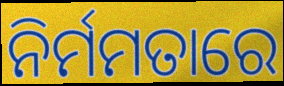
ନିର୍ମମତାରେ